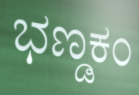
ಭಣ್ಡಕಂ